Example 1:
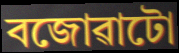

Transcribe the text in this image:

বজোৱাটো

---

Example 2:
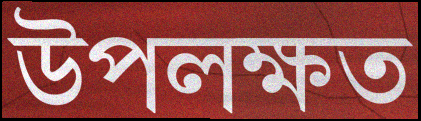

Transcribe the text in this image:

উপলক্ষত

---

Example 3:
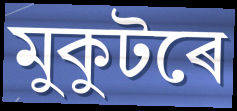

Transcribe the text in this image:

মুকুটৰে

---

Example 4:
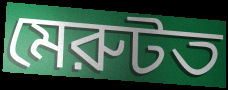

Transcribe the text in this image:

মেৰুটত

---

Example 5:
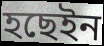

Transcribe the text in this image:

হছেইন